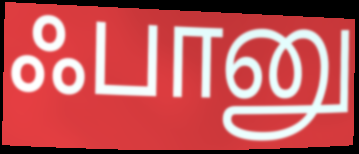
ஃபானு